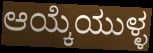
ಆಯ್ಕೆಯುಳ್ಳ